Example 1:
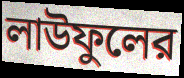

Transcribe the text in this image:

লাউফুলের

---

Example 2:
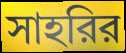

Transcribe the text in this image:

সাহরির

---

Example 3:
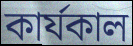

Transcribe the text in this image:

কার্যকাল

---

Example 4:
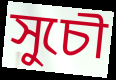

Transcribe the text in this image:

সুচৌ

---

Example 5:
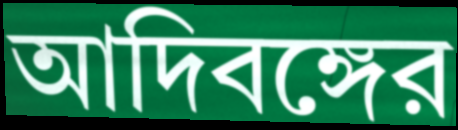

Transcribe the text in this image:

আদিবঙ্গের